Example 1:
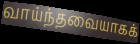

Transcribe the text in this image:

வாய்ந்தவையாகக்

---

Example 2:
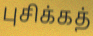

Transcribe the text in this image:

புசிக்கத்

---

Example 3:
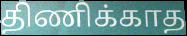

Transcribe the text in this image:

திணிக்காத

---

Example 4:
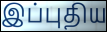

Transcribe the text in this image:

இப்புதிய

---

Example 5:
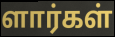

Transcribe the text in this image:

ளார்கள்